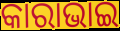
କାରାଭାଇ